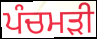
ਪੰਚਮੜੀ